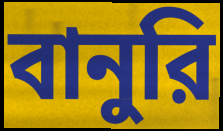
বানুরি